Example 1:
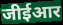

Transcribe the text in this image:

जीईआर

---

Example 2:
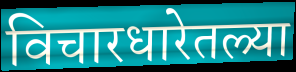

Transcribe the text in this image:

विचारधारेतल्या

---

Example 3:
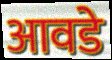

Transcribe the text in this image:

आवडे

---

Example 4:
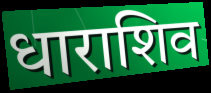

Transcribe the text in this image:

धाराशिव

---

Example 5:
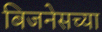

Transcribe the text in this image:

बिजनेसच्या